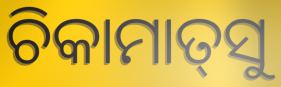
ଚିକାମାତ୍‌ସୁ